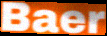
Baer